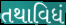
તથાવિધં